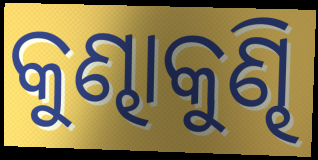
କୁଣ୍ଢାକୁଣ୍ଢି